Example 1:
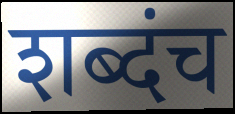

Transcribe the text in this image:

शब्दंच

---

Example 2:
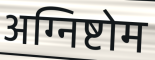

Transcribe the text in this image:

अग्निष्टोम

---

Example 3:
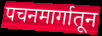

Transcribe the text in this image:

पचनमार्गातून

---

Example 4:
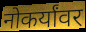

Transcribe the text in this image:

नोकर्यांवर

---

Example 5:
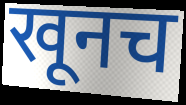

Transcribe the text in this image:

खूनच